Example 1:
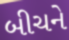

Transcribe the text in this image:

બીચને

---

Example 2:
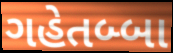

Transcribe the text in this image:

ગહેતબ્બા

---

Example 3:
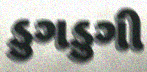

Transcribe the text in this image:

ડુગડુગી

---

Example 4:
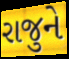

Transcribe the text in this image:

રાજુને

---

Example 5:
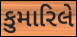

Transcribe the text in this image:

કુમારિલે